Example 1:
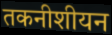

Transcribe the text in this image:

तकनीशीयन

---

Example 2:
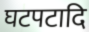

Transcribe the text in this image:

घटपटादि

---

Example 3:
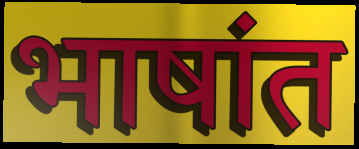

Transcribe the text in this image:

भाषांत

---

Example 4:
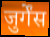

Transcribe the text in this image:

जुर्गेंस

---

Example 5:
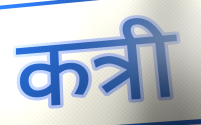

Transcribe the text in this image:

कत्री